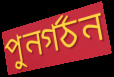
পুনৰ্গঠন